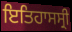
ਇਤਿਹਾਸਸ੍ਰੀ